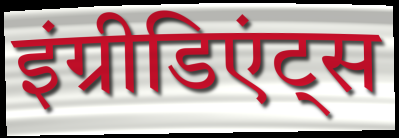
इंग्रीडिएंट्स